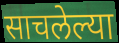
साचलेल्या